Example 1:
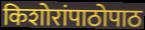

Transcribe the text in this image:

किशोरांपाठोपाठ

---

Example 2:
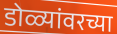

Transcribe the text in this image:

डोळ्यांवरच्या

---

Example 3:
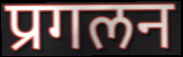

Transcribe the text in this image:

प्रगलन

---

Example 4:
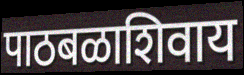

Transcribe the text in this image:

पाठबळाशिवाय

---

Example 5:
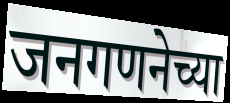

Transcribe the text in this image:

जनगणनेच्या